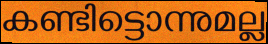
കണ്ടിട്ടൊന്നുമല്ല